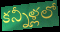
కన్నీళ్లలో